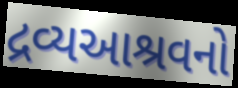
દ્રવ્યઆશ્રવનો